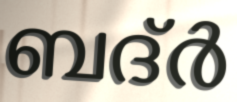
ബദ്ർ